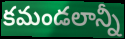
కమండలాన్నీ